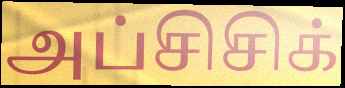
அப்சிசிக்